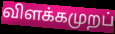
விளக்கமுறப்